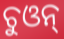
ଚୁଓନ୍